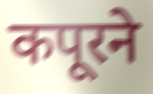
कपूरने